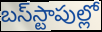
బస్‌స్టాపుల్లో